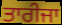
ਤਾਰੀਜਾ